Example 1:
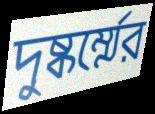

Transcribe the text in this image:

দুষ্কর্ম্মের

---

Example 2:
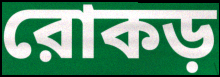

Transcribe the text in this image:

রোকড়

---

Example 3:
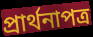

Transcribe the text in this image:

প্রার্থনাপত্র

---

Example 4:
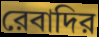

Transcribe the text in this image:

রেবাদির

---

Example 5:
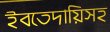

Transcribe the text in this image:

ইবতেদায়িসহ